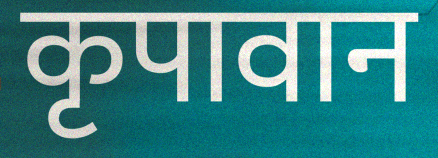
कृपावान